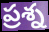
ప్రశ్న